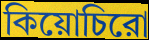
কিয়োচিরো